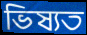
ভিষ্যত